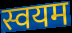
स्वयम